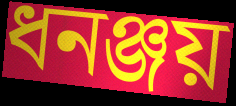
ধনঞ্জয়